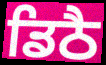
ਡਿਠੈ